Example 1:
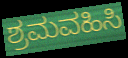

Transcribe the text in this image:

ಶ್ರಮವಹಿಸಿ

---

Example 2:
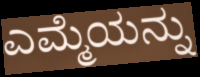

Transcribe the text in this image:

ಎಮ್ಮೆಯನ್ನು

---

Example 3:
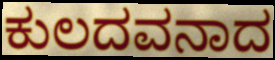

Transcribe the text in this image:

ಕುಲದವನಾದ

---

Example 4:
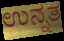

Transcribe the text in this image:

ಉನ್ನತ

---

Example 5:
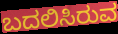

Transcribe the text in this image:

ಬದಲಿಸಿರುವ